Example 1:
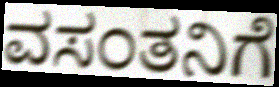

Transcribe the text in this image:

ವಸಂತನಿಗೆ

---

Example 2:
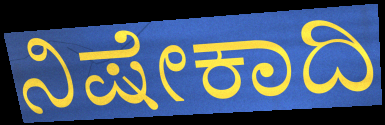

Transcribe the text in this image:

ನಿಷೇಕಾದಿ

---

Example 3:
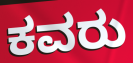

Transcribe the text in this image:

ಕವರು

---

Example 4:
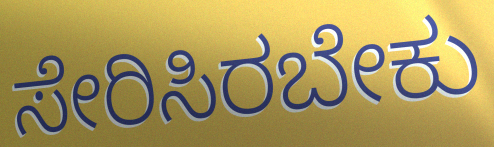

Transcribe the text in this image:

ಸೇರಿಸಿರಬೇಕು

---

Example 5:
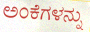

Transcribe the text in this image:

ಅಂಕೆಗಳನ್ನು